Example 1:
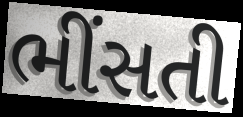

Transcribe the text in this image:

ભીંસતી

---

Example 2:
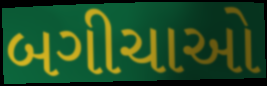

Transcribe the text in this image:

બગીચાઓ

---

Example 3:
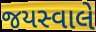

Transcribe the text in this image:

જયસ્વાલે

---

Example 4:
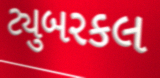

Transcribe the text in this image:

ટ્યુબરકલ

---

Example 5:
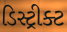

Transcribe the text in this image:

ડિસ્ટ્રીક્ટ